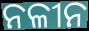
ନଳୀନ